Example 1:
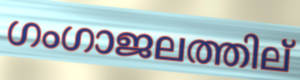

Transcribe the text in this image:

ഗംഗാജലത്തില്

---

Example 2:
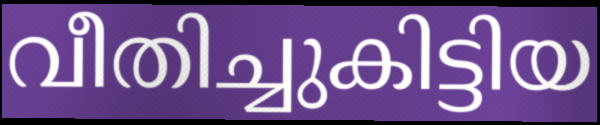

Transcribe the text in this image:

വീതിച്ചുകിട്ടിയ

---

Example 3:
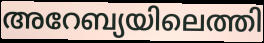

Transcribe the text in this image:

അറേബ്യയിലെത്തി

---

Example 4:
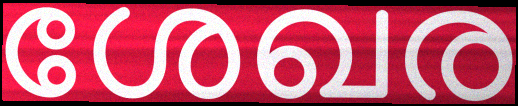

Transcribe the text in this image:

ശേഖര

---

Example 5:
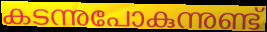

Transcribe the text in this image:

കടന്നുപോകുന്നുണ്ട്